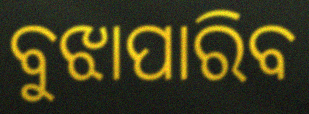
ବୁଝାପାରିବ